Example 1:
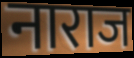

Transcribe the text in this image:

नाराज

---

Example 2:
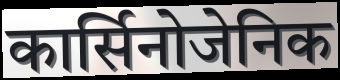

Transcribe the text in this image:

कार्सिनोजेनिक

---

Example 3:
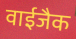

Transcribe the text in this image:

वाईजैक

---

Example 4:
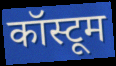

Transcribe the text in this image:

कॉस्टूम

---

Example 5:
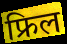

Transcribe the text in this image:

फ्रिल